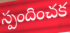
స్పందించక